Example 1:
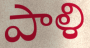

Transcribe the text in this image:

పాళి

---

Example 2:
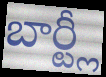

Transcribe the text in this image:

బార్ట్లీ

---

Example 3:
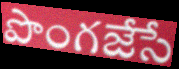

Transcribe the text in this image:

పొంగజేసే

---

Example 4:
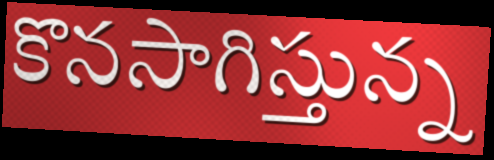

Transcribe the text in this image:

కొనసాగిస్తున్న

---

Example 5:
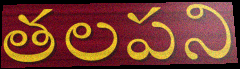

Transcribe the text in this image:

తలపని